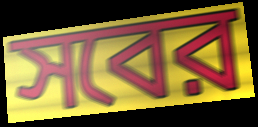
সবের